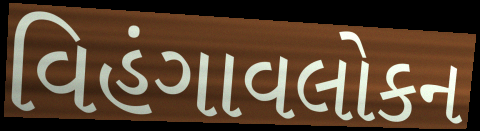
વિહંગાવલોકન